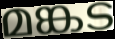
മങ്കട